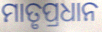
ମାତୃପ୍ରଧାନ